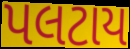
પલટાય